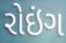
રોઇંગ